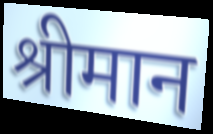
श्रीमान